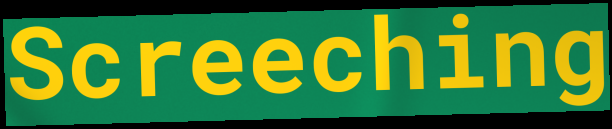
Screeching